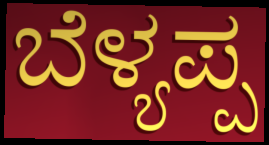
ಬೆಳ್ಯಪ್ಪ